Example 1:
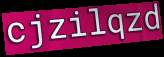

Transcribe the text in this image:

cjzilqzd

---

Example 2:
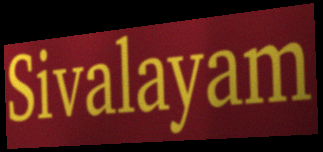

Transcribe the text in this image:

Sivalayam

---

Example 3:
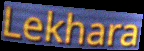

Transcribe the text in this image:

Lekhara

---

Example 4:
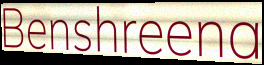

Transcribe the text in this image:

Benshreena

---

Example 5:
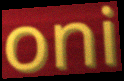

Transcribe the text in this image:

oni